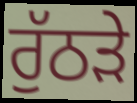
ਰੁੱਠੜੇ